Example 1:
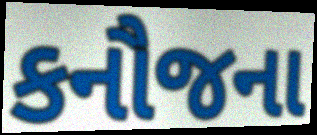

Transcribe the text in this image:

કનૌજના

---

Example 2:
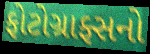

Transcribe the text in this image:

ફોટોગ્રાફ્સનો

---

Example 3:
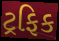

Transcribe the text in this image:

ટ્રફિક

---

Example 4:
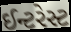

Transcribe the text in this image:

ઈન્ટરેસ્ટ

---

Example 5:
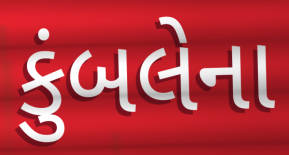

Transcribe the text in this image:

કુંબલેના